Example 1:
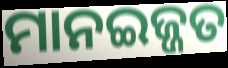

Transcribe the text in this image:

ମାନଇଜ୍ଜତ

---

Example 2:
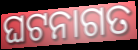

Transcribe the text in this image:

ଘଟନାଗତ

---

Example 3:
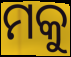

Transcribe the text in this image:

ମକୁ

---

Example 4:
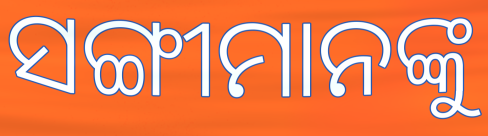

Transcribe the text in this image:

ସଙ୍ଗୀମାନଙ୍କୁ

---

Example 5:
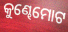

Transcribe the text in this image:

କୁଣ୍ଢେମୋଟ